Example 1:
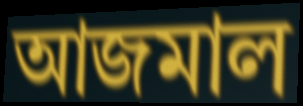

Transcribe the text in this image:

আজমাল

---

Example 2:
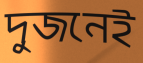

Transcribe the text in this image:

দুজনেই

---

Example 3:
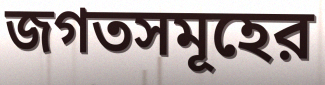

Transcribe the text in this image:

জগতসমূহের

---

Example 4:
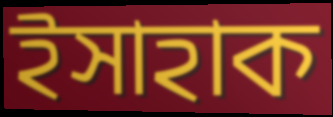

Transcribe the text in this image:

ইসাহাক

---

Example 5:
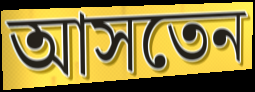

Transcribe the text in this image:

আসতেন